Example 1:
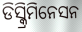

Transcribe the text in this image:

ଡିସ୍କ୍ରିମିନେସନ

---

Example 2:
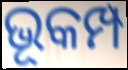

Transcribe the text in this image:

ଭୂକମ୍ପ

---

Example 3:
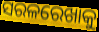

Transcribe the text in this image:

ସରଳରେଖାକୁ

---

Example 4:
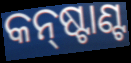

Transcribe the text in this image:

କନ୍‌ଷ୍ଟାଣ୍ଟ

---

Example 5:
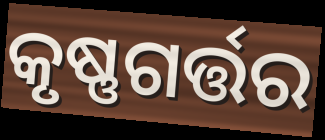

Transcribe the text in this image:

କୃଷ୍ଣଗର୍ତ୍ତର